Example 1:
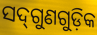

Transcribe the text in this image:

ସଦ୍‌ଗୁଣଗୁଡ଼ିକ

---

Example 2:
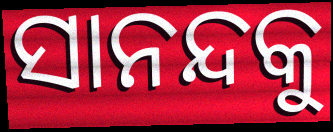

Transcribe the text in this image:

ସାନନ୍ଦକୁ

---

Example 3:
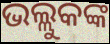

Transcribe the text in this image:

ଭଲ୍ଲୁକଙ୍କ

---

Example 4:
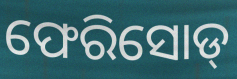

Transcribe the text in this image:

ଫେରିସୋଡ୍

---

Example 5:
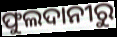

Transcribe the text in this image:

ଫୁଲଦାନୀରୁ